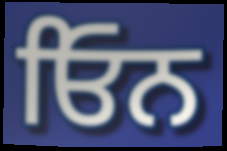
ਓਿਨ